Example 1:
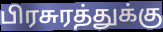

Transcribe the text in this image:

பிரசுரத்துக்கு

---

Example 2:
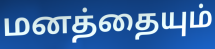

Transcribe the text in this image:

மனத்தையும்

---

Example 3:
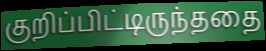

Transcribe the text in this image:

குறிப்பிட்டிருந்ததை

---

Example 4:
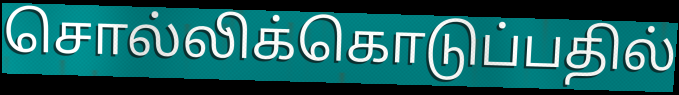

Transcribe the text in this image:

சொல்லிக்கொடுப்பதில்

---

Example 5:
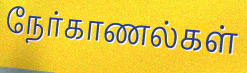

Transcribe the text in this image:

நேர்காணல்கள்